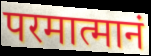
परमात्मानं